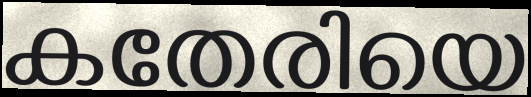
കതേരിയെ